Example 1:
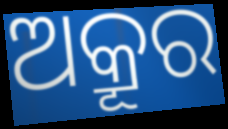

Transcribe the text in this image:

ଅକ୍ରୂର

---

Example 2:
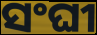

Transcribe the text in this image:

ସଂଘୀ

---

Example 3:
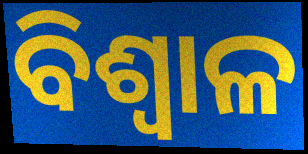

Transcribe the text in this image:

ବିଶ୍ୱାଳ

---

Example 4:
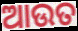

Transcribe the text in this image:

ଆଉତ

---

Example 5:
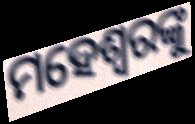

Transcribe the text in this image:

ମହେଶ୍ଵରଙ୍କୁ